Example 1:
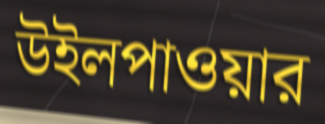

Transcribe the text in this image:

উইলপাওয়ার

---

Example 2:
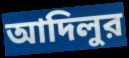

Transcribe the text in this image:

আদিলুর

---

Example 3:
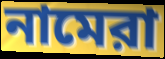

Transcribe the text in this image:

নামেরা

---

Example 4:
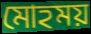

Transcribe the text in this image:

মোহময়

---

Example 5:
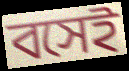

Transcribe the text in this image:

বসেই